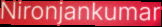
Nironjankumar